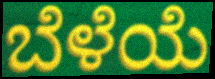
ಬೆಳೆಯೆ